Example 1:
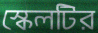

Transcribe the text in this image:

স্কেলটির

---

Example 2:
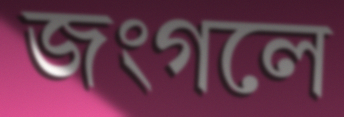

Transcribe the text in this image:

জংগলে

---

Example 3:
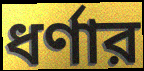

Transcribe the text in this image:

ধর্ণার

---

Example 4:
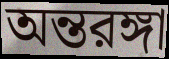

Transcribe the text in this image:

অন্তরঙ্গা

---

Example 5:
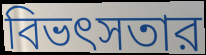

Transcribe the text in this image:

বিভৎসতার